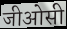
जीओसी